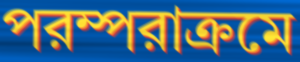
পরম্পরাক্রমে